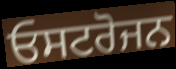
ਓਸਟਰੋਜਨ